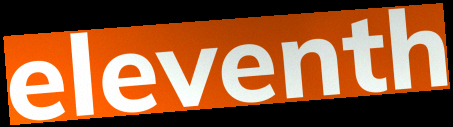
eleventh